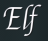
Elf